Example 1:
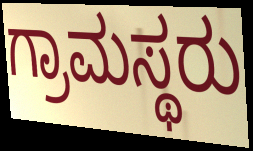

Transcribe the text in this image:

ಗ್ರಾಮಸ್ಥರು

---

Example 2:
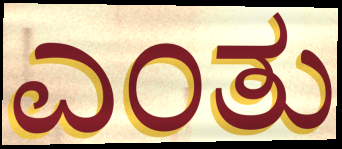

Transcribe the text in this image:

ಎಂತು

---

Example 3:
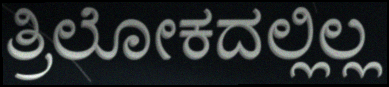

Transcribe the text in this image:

ತ್ರಿಲೋಕದಲ್ಲಿಲ್ಲ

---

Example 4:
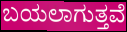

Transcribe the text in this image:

ಬಯಲಾಗುತ್ತವೆ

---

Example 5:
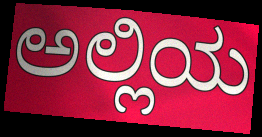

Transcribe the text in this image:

ಅಲ್ಲಿಯ